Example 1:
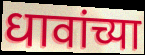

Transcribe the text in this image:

धावांच्या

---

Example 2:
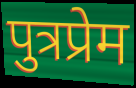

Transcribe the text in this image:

पुत्रप्रेम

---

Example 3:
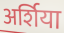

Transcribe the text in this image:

अर्शिया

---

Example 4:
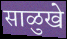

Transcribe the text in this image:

साळुखे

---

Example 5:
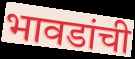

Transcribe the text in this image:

भावडांची